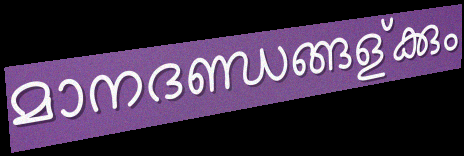
മാനദണ്ഡങ്ങള്ക്കും